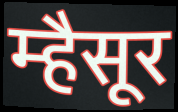
म्हैसूर